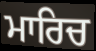
ਮਾਰਿਚ